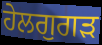
ਹੇਲਗੁਗੜ